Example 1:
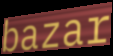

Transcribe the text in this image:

bazar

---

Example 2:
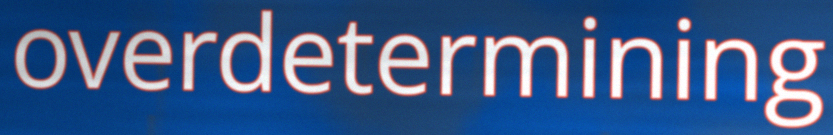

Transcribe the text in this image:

overdetermining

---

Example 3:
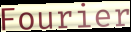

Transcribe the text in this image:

Fourier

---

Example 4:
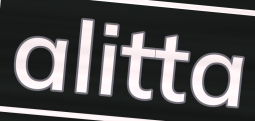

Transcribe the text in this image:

alitta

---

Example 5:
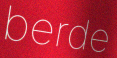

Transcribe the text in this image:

berde